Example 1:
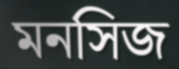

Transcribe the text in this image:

মনসিজ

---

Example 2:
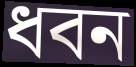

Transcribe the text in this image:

ধবন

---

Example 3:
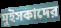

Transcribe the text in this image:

মুইসকাদের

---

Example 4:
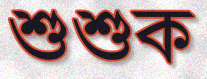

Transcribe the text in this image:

শুশুক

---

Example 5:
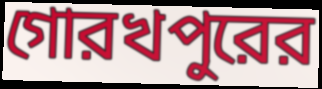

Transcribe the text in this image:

গোরখপুরের